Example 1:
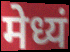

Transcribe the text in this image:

मेध्यं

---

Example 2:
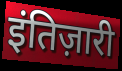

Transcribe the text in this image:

इंतिज़ारी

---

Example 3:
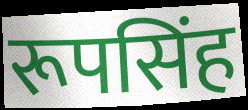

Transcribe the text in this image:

रूपसिंह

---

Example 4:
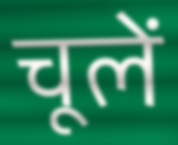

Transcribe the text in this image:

चूलें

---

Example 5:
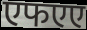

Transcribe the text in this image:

एफएए